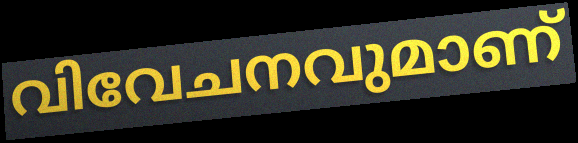
വിവേചനവുമാണ്